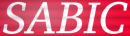
SABIC